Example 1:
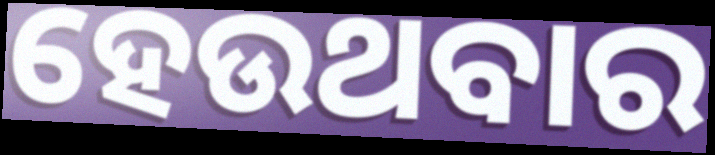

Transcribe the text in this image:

ହେଉଥବାର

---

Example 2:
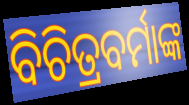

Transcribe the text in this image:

ବିଚିତ୍ରବର୍ମାଙ୍କ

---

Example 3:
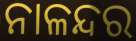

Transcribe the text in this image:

ନାଳନ୍ଦର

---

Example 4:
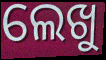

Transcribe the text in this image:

ଲେଖୁ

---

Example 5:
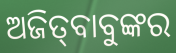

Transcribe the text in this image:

ଅଜିତ୍‍ବାବୁଙ୍କର